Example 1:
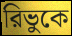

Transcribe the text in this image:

রিভুকে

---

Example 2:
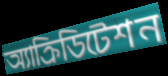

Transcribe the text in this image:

অ্যাক্রিডিটেশন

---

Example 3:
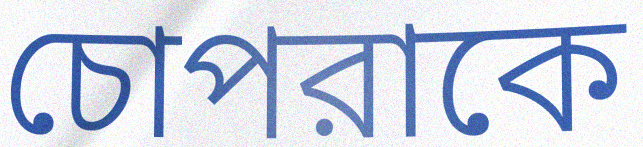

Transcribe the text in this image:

চোপরাকে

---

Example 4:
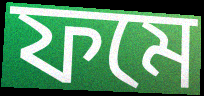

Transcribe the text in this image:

ফমে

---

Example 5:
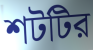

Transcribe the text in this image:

শটটির